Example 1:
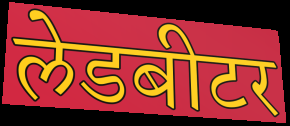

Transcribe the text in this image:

लेडबीटर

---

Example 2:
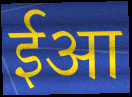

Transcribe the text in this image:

ईआ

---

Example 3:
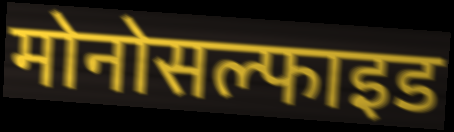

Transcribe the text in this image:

मोनोसल्फाइड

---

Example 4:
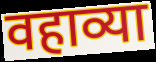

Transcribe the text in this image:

वहाव्या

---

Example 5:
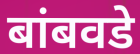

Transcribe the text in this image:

बांबवडे